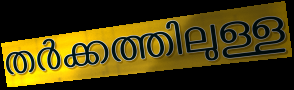
തർക്കത്തിലുള്ള